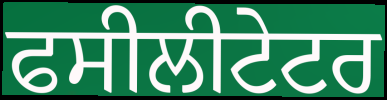
ਫਸੀਲੀਟੇਟਰ